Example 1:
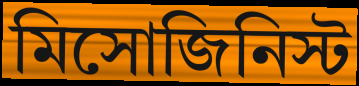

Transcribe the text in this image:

মিসোজিনিস্ট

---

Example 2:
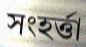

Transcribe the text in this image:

সংহর্ত্তা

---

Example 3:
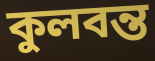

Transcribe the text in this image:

কুলবন্ত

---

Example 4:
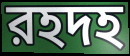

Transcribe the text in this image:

রহদহ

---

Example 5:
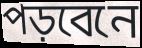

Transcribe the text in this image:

পড়বেনে